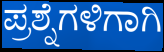
ಪ್ರಶ್ನೆಗಳಿಗಾಗಿ